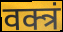
वक्त्रं